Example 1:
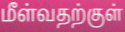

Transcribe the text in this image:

மீள்வதற்குள்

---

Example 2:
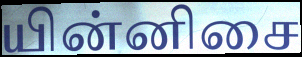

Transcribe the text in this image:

யின்னிசை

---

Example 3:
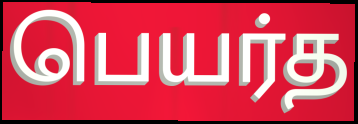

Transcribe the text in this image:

பெயர்த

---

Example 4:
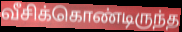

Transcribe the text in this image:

வீசிக்கொண்டிருந்த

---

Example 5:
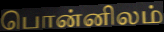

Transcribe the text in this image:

பொன்னிலம்